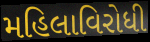
મહિલાવિરોધી